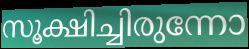
സൂക്ഷിച്ചിരുന്നോ